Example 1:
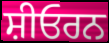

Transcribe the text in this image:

ਸ਼ੀਓਰਨ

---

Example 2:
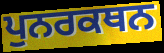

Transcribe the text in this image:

ਪੁਨਰਕਥਨ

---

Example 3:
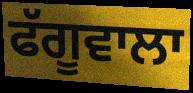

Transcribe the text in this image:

ਫੱਗੂਵਾਲਾ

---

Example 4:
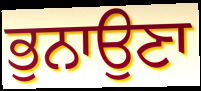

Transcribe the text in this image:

ਭੁਨਾਉਣਾ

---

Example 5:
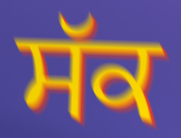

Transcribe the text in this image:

ਸੱਕ